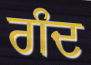
ਗੰਦ